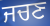
ਜਚਣ